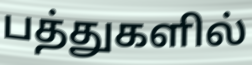
பத்துகளில்